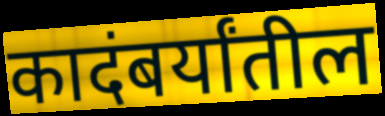
कादंबर्यांतील